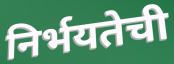
निर्भयतेची